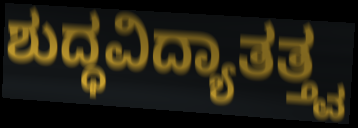
ಶುದ್ಧವಿದ್ಯಾತತ್ತ್ವ